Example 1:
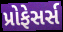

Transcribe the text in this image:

પ્રોફેસર્સ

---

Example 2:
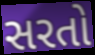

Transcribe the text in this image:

સરતો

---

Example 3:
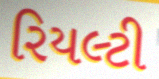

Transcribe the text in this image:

રિયલ્ટી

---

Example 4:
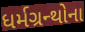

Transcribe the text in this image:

ધર્મગ્રન્થોના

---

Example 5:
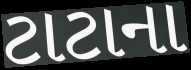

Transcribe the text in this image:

ટાટાના